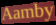
Aamby